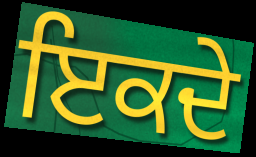
ਇਕਦੇ